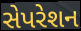
સેપરેશન